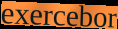
exercebor